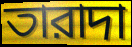
তারাদা